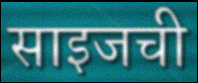
साइजची